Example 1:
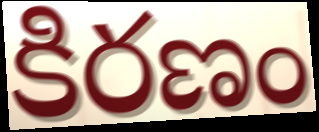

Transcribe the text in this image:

కిరణం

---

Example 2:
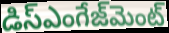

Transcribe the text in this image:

డిస్ఎంగేజ్‌మెంట్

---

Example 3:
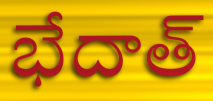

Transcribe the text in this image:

భేదాత్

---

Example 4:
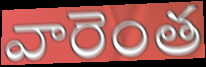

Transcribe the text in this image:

వారెంత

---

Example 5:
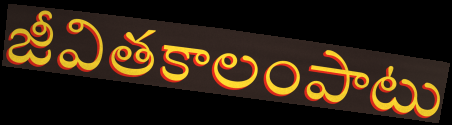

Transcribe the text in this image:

జీవితకాలంపాటు